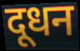
दूधन